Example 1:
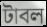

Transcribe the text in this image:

টাবল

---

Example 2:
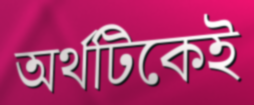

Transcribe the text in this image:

অর্থটিকেই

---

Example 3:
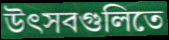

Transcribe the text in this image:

উৎসবগুলিতে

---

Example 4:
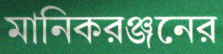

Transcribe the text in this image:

মানিকরঞ্জনের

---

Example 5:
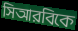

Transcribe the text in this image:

সিআরবিকে